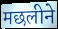
मछलीने